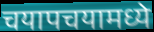
चयापचयामध्ये